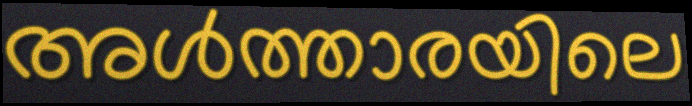
അൾത്താരയിലെ